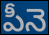
పీనె